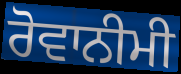
ਰੋਵਾਨੀਮੀ